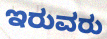
ಇರುವರು